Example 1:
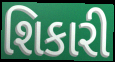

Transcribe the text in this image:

શિકારી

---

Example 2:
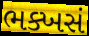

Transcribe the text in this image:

ભક્ખસં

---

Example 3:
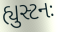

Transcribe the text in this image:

હ્યુસ્ટનઃ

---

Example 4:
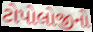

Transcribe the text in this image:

ટોપોલોજીનો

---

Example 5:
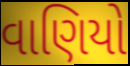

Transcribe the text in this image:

વાણિયો